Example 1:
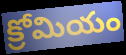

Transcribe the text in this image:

క్రోమియం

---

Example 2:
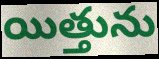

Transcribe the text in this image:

యిత్తును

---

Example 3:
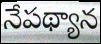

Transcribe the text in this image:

నేపథ్యాన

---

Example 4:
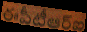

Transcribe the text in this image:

ఈపీటీఆర్ఐ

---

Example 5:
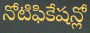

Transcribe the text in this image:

నోటిఫికేషన్లో